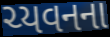
ચ્યવનના